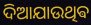
ଦିଆଯାଉଥିଵ